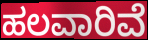
ಹಲವಾರಿವೆ